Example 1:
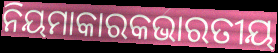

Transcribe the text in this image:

ନିୟମାକାରକଭାରତୀୟ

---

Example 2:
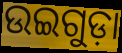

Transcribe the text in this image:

ଉଇଗୁଡ଼ା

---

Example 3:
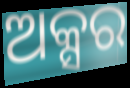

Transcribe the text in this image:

ଅକ୍ସର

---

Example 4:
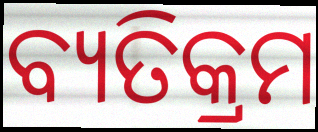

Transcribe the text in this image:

ବ୍ଯତିକ୍ରମ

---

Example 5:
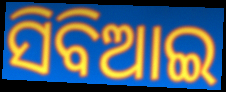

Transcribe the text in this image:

ସିବିଆଇ